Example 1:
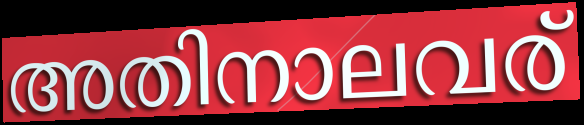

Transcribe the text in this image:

അതിനാലവര്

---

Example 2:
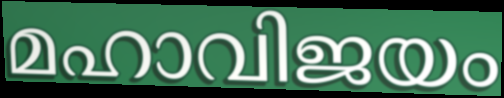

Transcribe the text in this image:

മഹാവിജയം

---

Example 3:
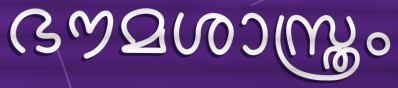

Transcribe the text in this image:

ഭൗമശാസ്ത്രം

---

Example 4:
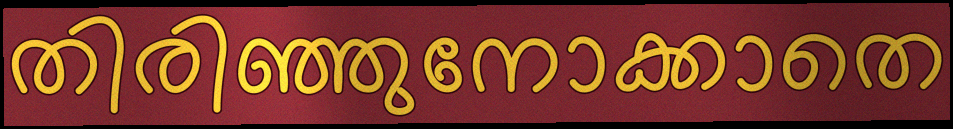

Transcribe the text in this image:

തിരിഞ്ഞുനോക്കാതെ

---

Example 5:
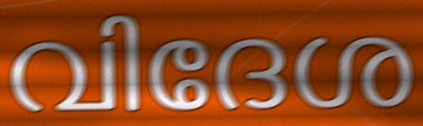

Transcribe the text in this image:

വിദേശ